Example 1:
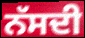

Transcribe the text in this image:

ਨੱਸਦੀ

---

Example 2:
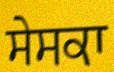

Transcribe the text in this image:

ਸੇਸਕਾ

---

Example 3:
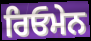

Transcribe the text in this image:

ਰਿਓਮੇਨ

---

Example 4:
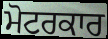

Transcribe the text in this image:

ਮੋਟਰਕਾਰ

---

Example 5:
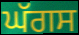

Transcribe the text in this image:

ਘੱਗਸ